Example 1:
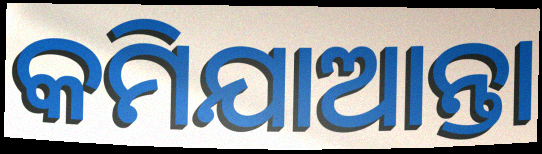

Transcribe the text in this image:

କମିଯାଆନ୍ତା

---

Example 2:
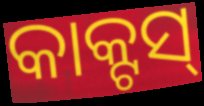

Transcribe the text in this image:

କାକ୍ଟସ୍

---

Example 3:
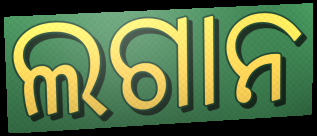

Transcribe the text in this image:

ଲଗାନ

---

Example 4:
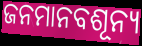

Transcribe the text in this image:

ଜନମାନବଶୂନ୍ୟ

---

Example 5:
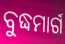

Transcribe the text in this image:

ବୁଦ୍ଧମାର୍ଗ